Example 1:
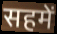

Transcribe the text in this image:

सहमें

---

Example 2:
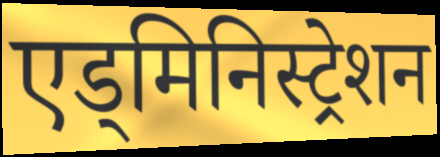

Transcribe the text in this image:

एड्मिनिस्ट्रेशन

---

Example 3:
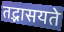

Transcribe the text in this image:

तद्भासयते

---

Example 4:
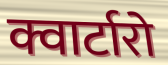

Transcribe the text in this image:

क्वार्टारो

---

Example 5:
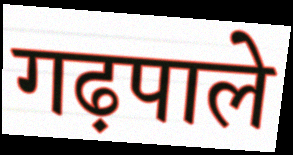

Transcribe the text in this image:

गढ़पाले